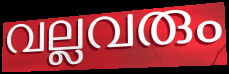
വല്ലവരും